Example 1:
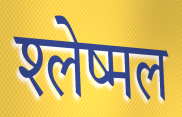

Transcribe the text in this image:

श्लेष्मल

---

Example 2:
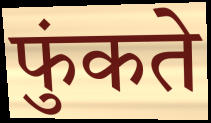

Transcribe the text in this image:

फुंकते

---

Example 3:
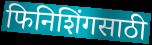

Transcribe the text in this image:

फिनिशिंगसाठी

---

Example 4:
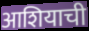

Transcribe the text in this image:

आशियाची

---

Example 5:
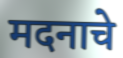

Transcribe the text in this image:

मदनाचे